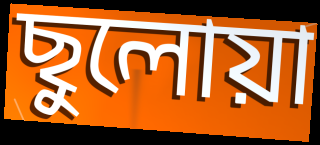
ছুলোয়া